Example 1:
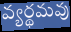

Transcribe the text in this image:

వ్యర్థమవు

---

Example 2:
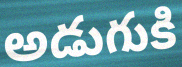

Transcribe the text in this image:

అడుగుకి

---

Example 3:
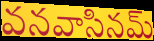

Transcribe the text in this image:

వనవాసినమ్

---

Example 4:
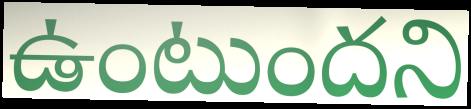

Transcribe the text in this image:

ఉంటుందని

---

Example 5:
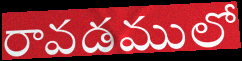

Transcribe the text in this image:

రావడములో